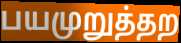
பயமுறுத்தற